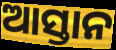
ଆସ୍ତାନ